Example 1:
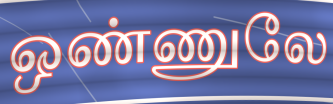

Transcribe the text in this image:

ஒண்ணுலே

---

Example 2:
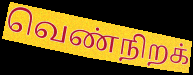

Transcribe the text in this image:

வெண்நிறக்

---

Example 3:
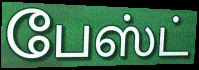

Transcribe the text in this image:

பேஸ்ட்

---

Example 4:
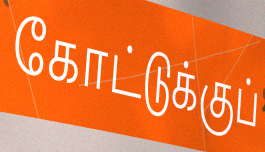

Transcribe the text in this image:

கோட்டுக்குப்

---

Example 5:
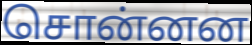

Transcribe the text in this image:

சொன்னன